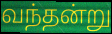
வந்தன்று